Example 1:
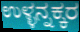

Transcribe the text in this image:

ಉಳ್ಳನ್ನಕ್ಕರ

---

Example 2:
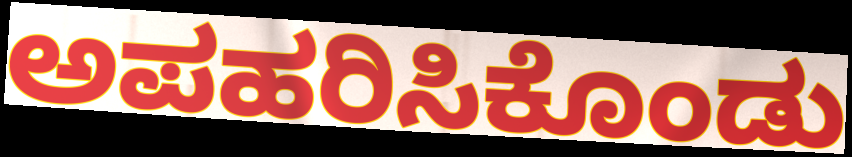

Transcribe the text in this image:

ಅಪಹರಿಸಿಕೊಂಡು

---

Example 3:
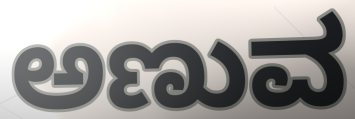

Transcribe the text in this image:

ಅಣುವ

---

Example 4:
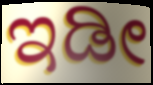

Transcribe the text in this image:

ಇಡೀ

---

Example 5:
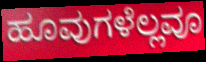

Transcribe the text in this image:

ಹೂವುಗಳೆಲ್ಲವೂ